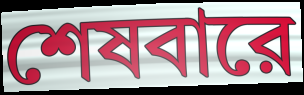
শেষবারে